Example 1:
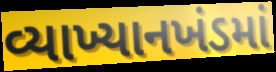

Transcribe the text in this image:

વ્યાખ્યાનખંડમાં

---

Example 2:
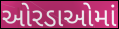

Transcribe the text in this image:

ઓરડાઓમાં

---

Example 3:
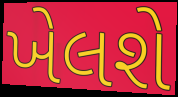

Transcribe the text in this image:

ખેલશે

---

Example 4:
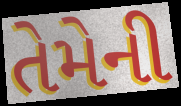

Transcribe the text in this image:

તેમેની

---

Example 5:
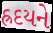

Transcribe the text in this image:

હ્રદયને